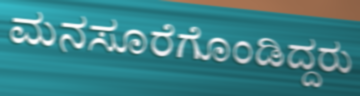
ಮನಸೂರೆಗೊಂಡಿದ್ದರು